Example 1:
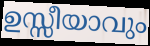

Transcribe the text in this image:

ഉസ്സീയാവും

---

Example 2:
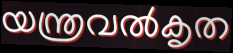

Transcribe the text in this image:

യന്ത്രവൽകൃത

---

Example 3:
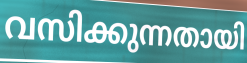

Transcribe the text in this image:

വസിക്കുന്നതായി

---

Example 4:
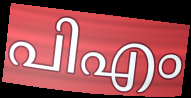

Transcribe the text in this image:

പിഎം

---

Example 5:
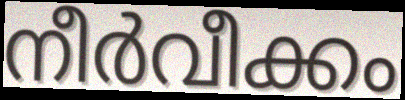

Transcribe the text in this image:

നീർവീക്കം